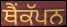
ਥੈਂਕੱਪਨ